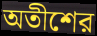
অতীশের